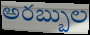
అరబ్బుల